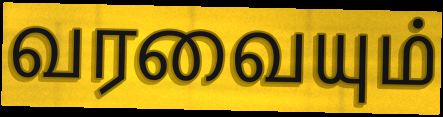
வரவையும்